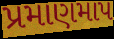
પ્રમાણમાપ